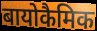
बायोकैमिक